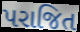
પરાજિત